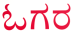
ಓಗರ